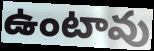
ఉంటావు